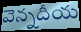
వెన్నదీయ